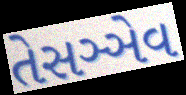
તેસઞ્ઞેવ